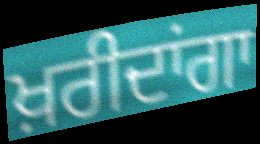
ਖ਼ਰੀਦਾਂਗਾ